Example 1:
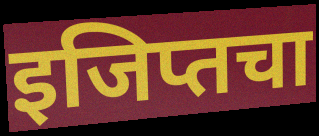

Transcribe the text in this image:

इजिप्तचा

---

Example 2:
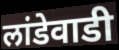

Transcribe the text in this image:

लांडेवाडी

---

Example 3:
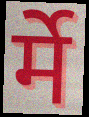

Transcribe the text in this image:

र्मे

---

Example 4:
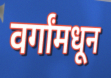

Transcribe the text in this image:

वर्गांमधून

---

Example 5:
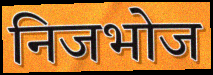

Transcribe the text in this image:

निजभोज